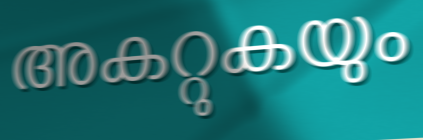
അകറ്റുകയും